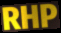
RHP